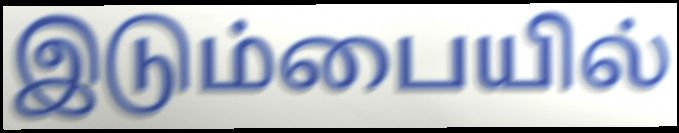
இடும்பையில்